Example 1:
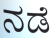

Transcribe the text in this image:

ನಡೆ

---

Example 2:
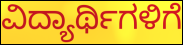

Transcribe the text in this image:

ವಿದ್ಯಾರ್ಥಿಗಳಿಗೆ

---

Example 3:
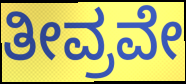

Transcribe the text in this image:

ತೀವ್ರವೇ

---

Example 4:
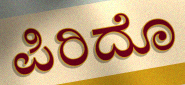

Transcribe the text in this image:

ಪಿರಿದೊ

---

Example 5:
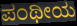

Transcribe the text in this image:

ಪಂಥೀಯ